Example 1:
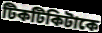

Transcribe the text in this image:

টিকটিকিটাকে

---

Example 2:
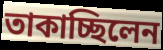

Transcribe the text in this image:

তাকাচ্ছিলেন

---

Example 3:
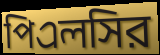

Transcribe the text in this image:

পিএলসির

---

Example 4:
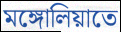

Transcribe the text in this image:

মঙ্গোলিয়াতে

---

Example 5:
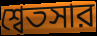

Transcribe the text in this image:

শ্বেতসার